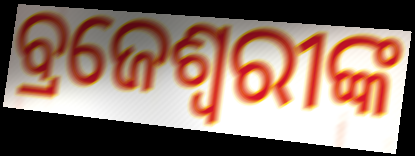
ବ୍ରଜେଶ୍ୱରୀଙ୍କ